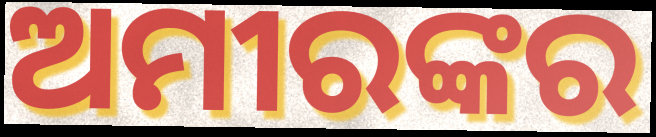
ଅମୀରଙ୍କର